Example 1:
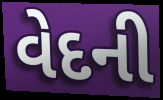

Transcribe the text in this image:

વેદની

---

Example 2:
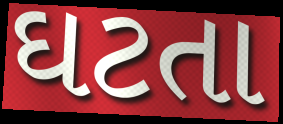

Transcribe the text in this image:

ઘટતા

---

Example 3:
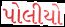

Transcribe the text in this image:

પોલીયો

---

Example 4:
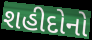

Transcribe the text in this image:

શહીદોનો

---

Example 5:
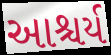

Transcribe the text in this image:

આશ્ચર્ય